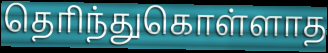
தெரிந்துகொள்ளாத